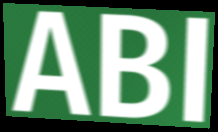
ABI